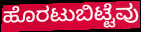
ಹೊರಟುಬಿಟ್ಟೆವು